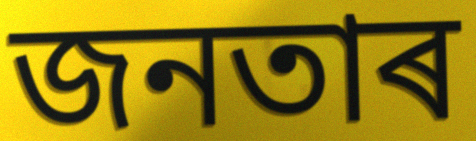
জনতাৰ